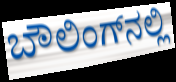
ಬೌಲಿಂಗ್‌ನಲ್ಲಿ